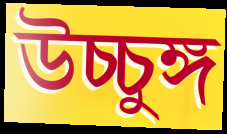
উচ্চুঙ্গ